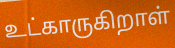
உட்காருகிறாள்